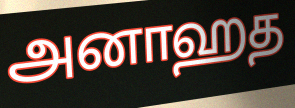
அனாஹத